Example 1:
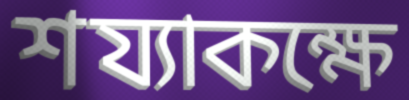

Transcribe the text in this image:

শয্যাকক্ষে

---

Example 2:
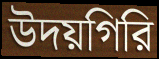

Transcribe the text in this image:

উদয়গিরি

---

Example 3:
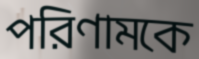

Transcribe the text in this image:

পরিণামকে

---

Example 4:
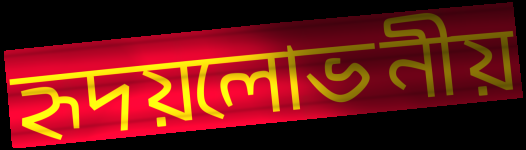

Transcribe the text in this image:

হৃদয়লোভনীয়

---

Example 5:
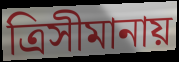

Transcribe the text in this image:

ত্রিসীমানায়